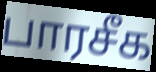
பாரசீக